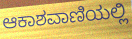
ಆಕಾಶವಾಣಿಯಲ್ಲಿ